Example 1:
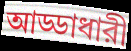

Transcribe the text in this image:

আড্ডাধারী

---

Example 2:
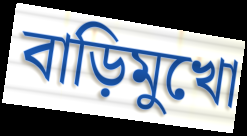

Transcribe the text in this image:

বাড়িমুখো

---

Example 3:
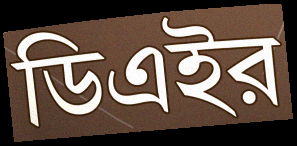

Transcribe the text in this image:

ডিএইর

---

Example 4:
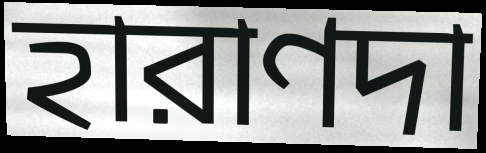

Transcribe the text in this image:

হারাণদা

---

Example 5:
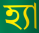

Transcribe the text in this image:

হ্যা